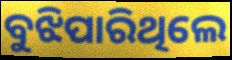
ବୁଝିପାରିଥିଲେ